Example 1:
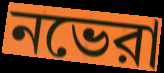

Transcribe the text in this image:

নভেরা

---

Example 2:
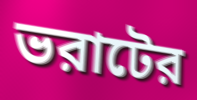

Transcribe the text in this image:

ভরাটের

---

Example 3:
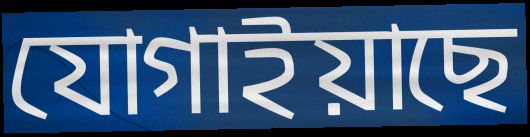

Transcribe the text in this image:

যোগাইয়াছে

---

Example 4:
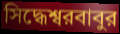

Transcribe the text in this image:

সিদ্ধেশ্বরবাবুর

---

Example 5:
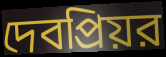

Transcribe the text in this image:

দেবপ্রিয়র